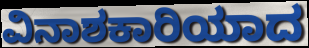
ವಿನಾಶಕಾರಿಯಾದ